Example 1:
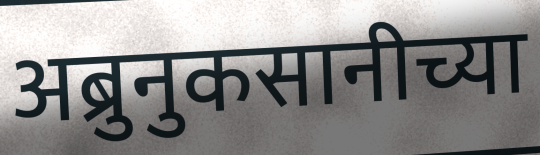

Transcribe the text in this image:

अब्रुनुकसानीच्या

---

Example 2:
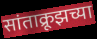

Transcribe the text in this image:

सांताक्रूझच्या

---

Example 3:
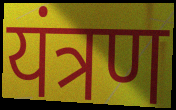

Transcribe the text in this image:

यंत्रण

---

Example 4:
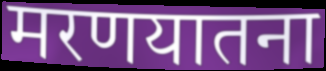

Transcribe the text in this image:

मरणयातना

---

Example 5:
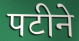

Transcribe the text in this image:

पटीने